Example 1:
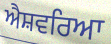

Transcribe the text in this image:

ਐਸ਼ਵਰਿਆ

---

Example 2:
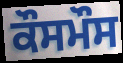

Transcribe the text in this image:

ਕੌਸਮੌਸ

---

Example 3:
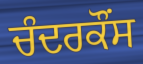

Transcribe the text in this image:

ਚੰਦਰਕੌਂਸ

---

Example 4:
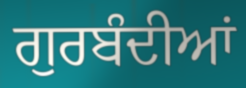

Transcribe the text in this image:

ਗੁਰਬੰਦੀਆਂ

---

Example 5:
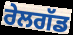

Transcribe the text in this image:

ਰੇਲਗੱਡ